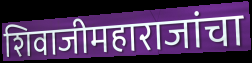
शिवाजीमहाराजांचा